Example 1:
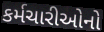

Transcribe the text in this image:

કર્મચારીઓનો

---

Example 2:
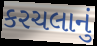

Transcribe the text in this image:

કરચલાનું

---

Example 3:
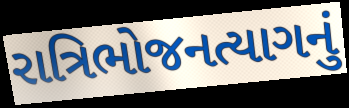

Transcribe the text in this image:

રાત્રિભોજનત્યાગનું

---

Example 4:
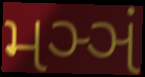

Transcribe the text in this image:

મઞ્ઞં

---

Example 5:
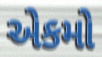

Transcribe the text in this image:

એકમો